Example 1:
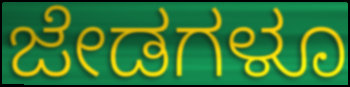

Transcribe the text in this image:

ಜೇಡಗಳೂ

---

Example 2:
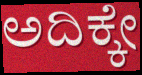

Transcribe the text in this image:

ಅದಿಕ್ಕೇ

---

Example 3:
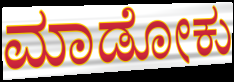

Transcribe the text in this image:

ಮಾಡೋಕು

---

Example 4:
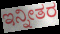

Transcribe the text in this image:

ಇನ್ನೀತರ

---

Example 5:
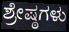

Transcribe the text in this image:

ಶ್ರೇಷ್ಠಗಳು